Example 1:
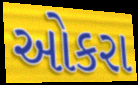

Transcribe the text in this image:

ઓકરા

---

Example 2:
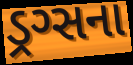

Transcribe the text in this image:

ડ્રગ્સના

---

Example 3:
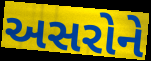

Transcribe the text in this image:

અસરોને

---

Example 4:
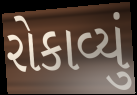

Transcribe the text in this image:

રોકાવ્યું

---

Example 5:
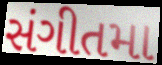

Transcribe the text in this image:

સંગીતમા